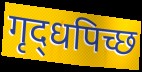
गृद्धपिच्छ